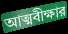
আত্মবীক্ষার